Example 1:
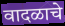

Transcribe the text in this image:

वादळाचे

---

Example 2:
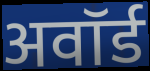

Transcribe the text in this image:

अवॉर्ड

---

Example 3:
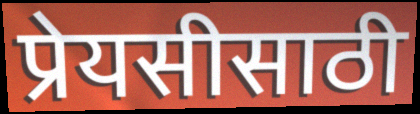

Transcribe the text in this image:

प्रेयसीसाठी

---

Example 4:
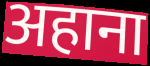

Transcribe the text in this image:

अहाना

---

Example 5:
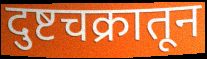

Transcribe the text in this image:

दुष्टचक्रातून